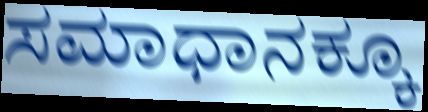
ಸಮಾಧಾನಕ್ಕೂ